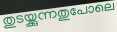
തുടയ്ക്കുന്നതുപോലെ